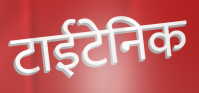
टाईटेनिक